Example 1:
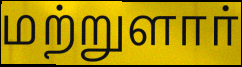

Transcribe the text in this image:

மற்றுளார்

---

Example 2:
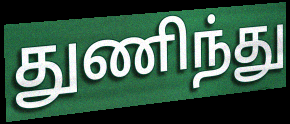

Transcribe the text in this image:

துணிந்து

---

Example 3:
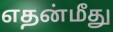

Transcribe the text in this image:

எதன்மீது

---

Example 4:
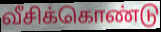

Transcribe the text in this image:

வீசிக்கொண்டு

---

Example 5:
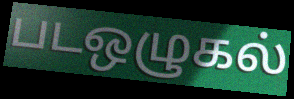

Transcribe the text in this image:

படஒழுகல்